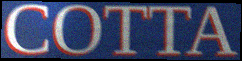
COTTA